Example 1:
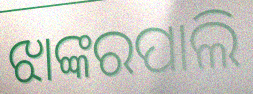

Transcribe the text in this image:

ଝାଙ୍କରପାଲି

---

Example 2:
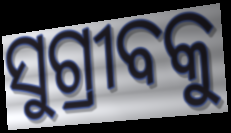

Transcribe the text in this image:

ସୁଗ୍ରୀବକୁ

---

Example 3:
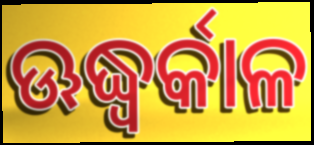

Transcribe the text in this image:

ଊଦ୍ଧ୍ୱର୍କାଳ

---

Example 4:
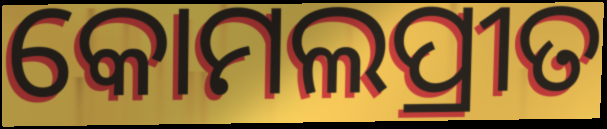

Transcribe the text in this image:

କୋମଲପ୍ରୀତ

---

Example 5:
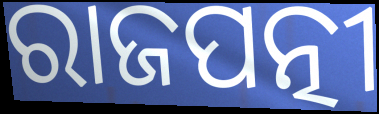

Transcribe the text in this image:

ରାଜପତ୍ନୀ